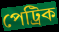
পেট্ৰিক